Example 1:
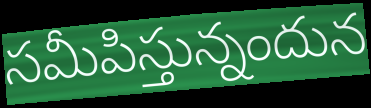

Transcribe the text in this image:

సమీపిస్తున్నందున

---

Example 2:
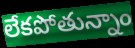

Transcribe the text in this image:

లేకపోతున్నాం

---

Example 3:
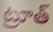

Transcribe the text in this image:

ట్రూత్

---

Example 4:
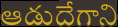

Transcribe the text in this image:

ఆడుదేగాని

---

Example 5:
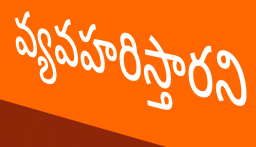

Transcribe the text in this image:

వ్యవహరిస్తారని